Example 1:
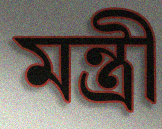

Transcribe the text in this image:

মন্ত্ৰী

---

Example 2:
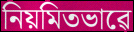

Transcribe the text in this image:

নিয়মিতভাৱে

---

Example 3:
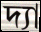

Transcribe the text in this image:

দ্যা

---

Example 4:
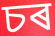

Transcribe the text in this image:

চৰ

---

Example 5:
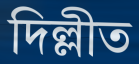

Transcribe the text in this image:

দিল্লীত